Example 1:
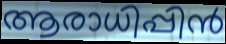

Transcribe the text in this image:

ആരാധിപ്പിൻ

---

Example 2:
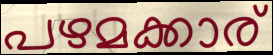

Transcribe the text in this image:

പഴമക്കാര്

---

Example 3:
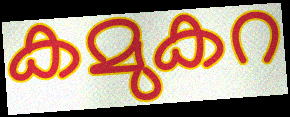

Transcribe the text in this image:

കമുകറ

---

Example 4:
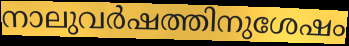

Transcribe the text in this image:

നാലുവർഷത്തിനുശേഷം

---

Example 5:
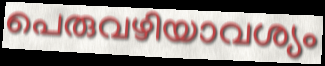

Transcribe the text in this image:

പെരുവഴിയാവശ്യം